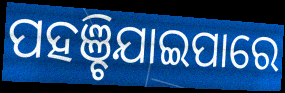
ପହଞ୍ଚିଯାଇପାରେ